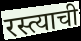
रस्त्याची